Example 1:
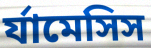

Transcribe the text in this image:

র্যামেসিস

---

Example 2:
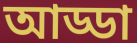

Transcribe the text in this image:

আড্ডা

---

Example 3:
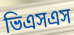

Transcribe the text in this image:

ভিএসএস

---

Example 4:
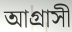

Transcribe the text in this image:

আগ্রাসী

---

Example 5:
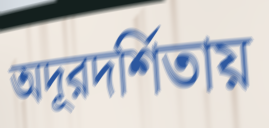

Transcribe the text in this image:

অদূরদর্শিতায়